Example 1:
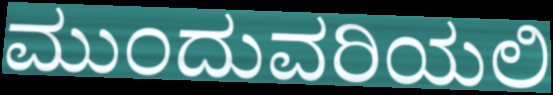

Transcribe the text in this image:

ಮುಂದುವರಿಯಲಿ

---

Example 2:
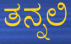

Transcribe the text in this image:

ತನ್ನಲಿ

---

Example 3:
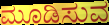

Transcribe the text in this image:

ಮೂಡಿಸುವ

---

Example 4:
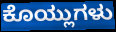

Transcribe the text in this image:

ಕೊಯ್ಲುಗಳು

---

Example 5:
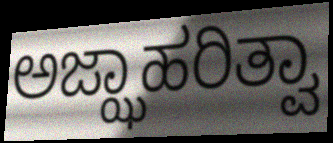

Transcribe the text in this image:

ಅಜ್ಝಾಹರಿತ್ವಾ